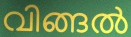
വിങ്ങൽ